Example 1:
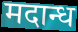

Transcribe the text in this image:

मदान्ध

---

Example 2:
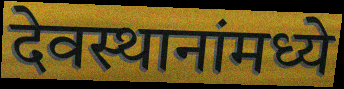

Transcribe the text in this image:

देवस्थानांमध्ये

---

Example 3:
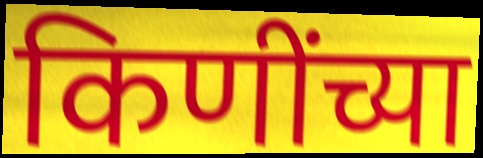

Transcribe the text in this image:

किणींच्या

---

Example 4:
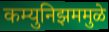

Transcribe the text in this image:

कम्युनिझममुळे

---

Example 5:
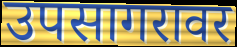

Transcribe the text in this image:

उपसागरावर